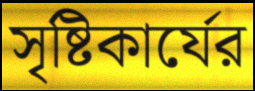
সৃষ্টিকার্যের